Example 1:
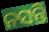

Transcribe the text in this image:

ନସନ୍ତି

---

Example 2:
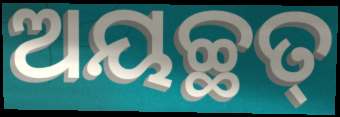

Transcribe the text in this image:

ଅୟଚ୍ଛତ୍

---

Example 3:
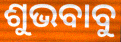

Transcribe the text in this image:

ଶୁଭବାବୁ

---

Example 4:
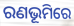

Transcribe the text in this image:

ରଣଭୂମିରେ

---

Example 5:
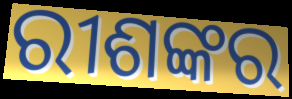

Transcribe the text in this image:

ରୀଶଙ୍କର